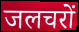
जलचरों